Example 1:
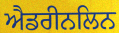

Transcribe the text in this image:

ਐਡਰੀਨਲਿਨ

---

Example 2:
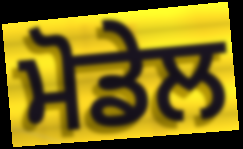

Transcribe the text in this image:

ਮੋਡੇਲ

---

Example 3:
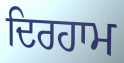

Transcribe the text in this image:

ਦਿਰਹਾਮ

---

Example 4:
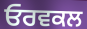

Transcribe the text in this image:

ਓਰਵਕਲ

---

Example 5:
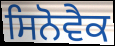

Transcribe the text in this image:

ਸਿਨੋਵੈਕ